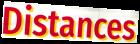
Distances